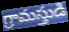
గ్రామస్తుడి